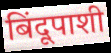
बिंदूपाशी